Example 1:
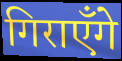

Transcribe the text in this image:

गिराएँगे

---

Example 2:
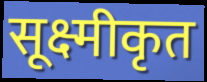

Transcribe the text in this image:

सूक्ष्मीकृत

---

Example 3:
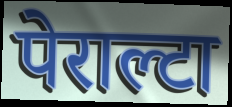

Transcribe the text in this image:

पेराल्टा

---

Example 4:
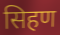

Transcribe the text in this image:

सिहण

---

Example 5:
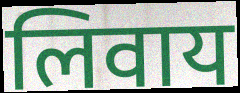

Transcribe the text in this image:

लिवाय